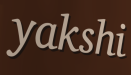
yakshi